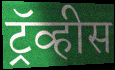
ट्रॅव्हीस